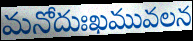
మనోదుఃఖమువలన